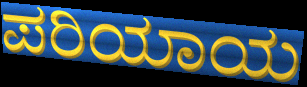
ಪರಿಯಾಯ